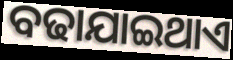
ବଢାଯାଇଥାଏ